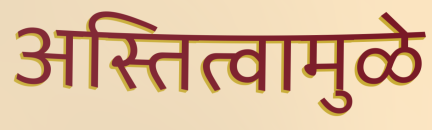
अस्तित्वामुळे